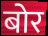
बोर